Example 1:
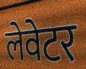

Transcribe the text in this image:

लेवेटर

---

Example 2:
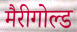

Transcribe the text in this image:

मैरीगोल्ड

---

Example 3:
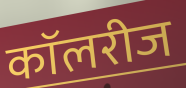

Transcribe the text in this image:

कॉलरीज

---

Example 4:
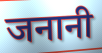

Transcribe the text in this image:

जनानी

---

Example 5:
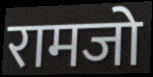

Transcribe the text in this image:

रामजो